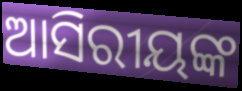
ଆସିରୀୟଙ୍କ